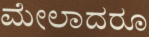
ಮೇಲಾದರೂ